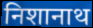
निशानाथ